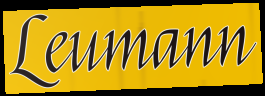
Leumann